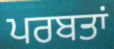
ਪਰਬਤਾਂ